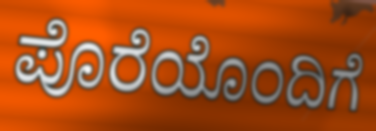
ಪೊರೆಯೊಂದಿಗೆ